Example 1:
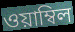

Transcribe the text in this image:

ওয়াম্বিল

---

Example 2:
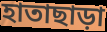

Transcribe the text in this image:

হাতাছাড়া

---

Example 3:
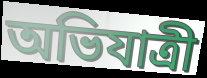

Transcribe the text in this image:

অভিযাত্রী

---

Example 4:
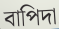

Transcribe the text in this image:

বাপিদা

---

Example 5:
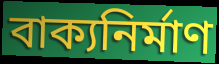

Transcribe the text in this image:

বাক্যনির্মাণ